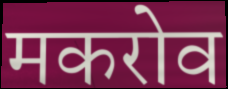
मकरोव